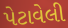
પેટાવેલી